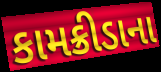
કામક્રીડાના